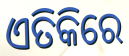
ଏତିକିରେ